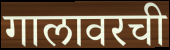
गालावरची